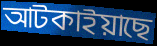
আটকাইয়াছে